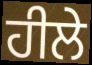
ਹੀਲੇ